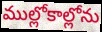
ముల్లోకాల్లోను